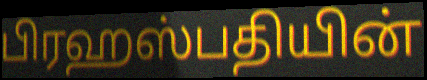
பிரஹஸ்பதியின்